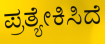
ಪ್ರತ್ಯೇಕಿಸಿದೆ